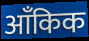
आँकिक